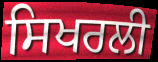
ਸਿਖਰਲੀ